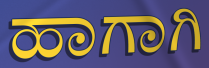
ಹಾಗಾಗಿ